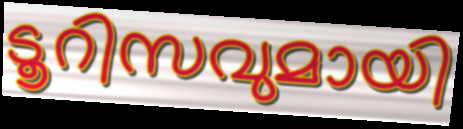
ടൂറിസവുമായി